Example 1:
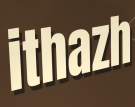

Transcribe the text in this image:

ithazh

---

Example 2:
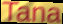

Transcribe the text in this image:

Tana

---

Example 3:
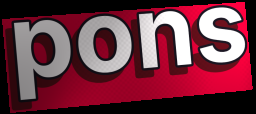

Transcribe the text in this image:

pons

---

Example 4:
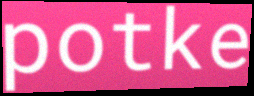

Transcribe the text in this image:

potke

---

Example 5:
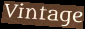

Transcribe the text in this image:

Vintage